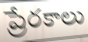
ప్రేరకాలు